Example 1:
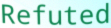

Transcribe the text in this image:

Refuted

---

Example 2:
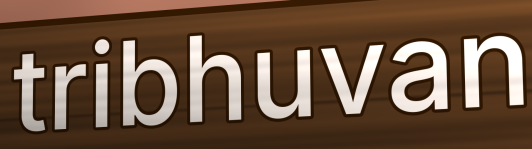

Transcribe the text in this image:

tribhuvan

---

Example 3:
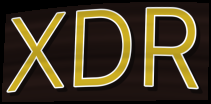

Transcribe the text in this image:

XDR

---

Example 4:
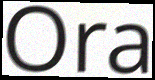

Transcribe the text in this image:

Ora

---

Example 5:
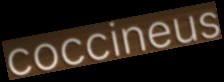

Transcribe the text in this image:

coccineus